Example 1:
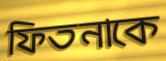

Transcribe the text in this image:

ফিতনাকে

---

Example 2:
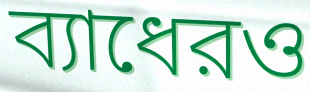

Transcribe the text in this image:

ব্যাধেরও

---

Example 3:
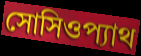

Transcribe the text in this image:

সোসিওপ্যাথ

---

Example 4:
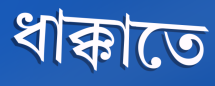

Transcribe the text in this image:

ধাক্কাতে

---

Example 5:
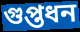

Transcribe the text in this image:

গুপ্তধন